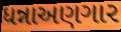
ધન્નાઅણગાર